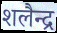
शलैन्द्र